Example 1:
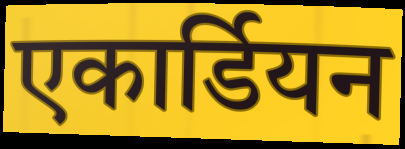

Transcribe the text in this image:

एकार्डियन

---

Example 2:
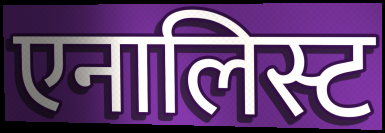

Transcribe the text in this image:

एनालिस्ट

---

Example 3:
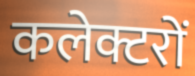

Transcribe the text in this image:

कलेक्टरों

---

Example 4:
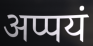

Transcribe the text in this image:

अप्पयं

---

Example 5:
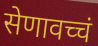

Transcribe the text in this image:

सेणावच्चं